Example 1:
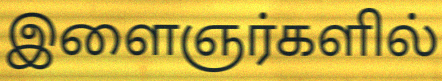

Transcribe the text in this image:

இளைஞர்களில்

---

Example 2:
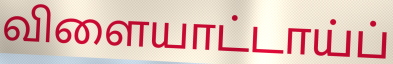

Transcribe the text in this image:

விளையாட்டாய்ப்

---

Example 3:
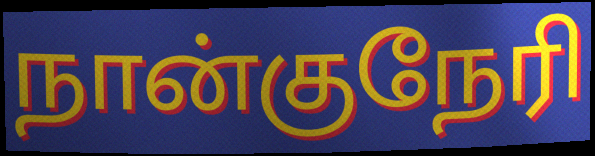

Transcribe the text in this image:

நான்குநேரி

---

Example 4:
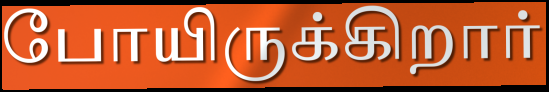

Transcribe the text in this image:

போயிருக்கிறார்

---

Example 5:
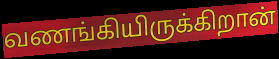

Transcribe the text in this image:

வணங்கியிருக்கிறான்